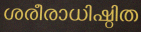
ശരീരാധിഷ്ഠിത